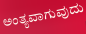
ಅಂತ್ಯವಾಗುವುದು